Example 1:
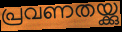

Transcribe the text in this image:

പ്രവണതയ്ക്കു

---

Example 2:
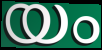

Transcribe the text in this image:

യം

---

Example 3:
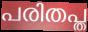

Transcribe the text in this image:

പരിതപ്ത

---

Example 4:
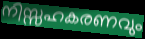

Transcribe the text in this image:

നിസ്സഹകരണവും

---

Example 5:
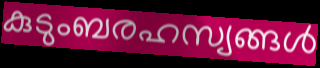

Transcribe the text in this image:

കുടുംബരഹസ്യങ്ങൾ